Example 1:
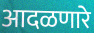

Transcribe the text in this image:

आदळणारे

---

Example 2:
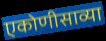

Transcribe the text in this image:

एकोणीसाव्या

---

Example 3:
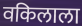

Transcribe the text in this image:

वकिलाला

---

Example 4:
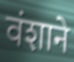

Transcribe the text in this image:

वंशाने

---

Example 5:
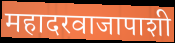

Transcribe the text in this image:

महादरवाजापाशी